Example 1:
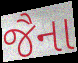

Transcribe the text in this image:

જૈના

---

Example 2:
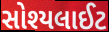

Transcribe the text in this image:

સોશ્યલાઈટ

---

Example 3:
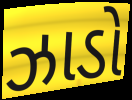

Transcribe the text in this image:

ઝાડો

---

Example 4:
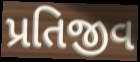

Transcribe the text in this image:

પ્રતિજીવ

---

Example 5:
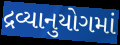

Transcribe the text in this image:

દ્રવ્યાનુયોગમાં